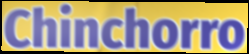
Chinchorro